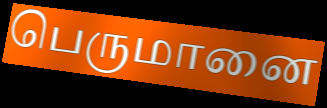
பெருமானை